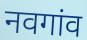
नवगांव